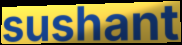
sushant